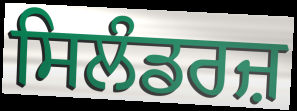
ਸਿਲੰਡਰਜ਼